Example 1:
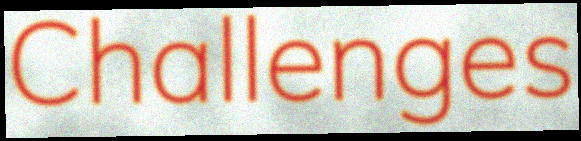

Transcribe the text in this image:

Challenges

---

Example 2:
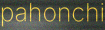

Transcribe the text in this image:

pahonchi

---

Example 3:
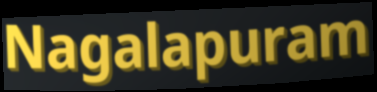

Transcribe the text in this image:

Nagalapuram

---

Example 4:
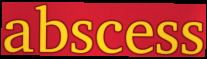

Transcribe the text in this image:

abscess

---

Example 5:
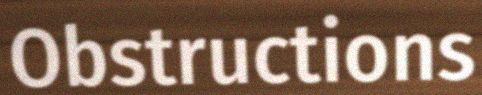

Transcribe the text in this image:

Obstructions